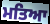
ਮਤਿਆ